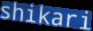
shikari